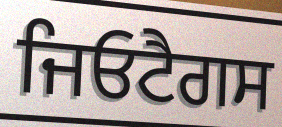
ਜਿਓਟੈਗਸ